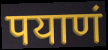
पयाणं